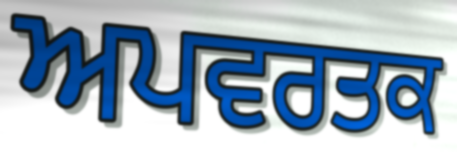
ਅਪਵਰਤਕ